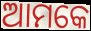
ଆମକେ